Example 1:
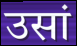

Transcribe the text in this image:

उसां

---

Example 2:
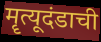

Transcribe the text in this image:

मॄत्यूदंडाची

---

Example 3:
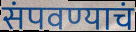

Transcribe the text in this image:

संपवण्याचं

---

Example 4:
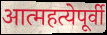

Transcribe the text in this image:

आत्महत्येपूर्वी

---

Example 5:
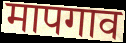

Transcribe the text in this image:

मापगाव